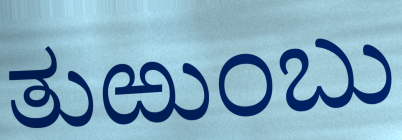
ತುಱುಂಬು